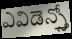
ఎవిడెన్స్తో